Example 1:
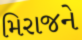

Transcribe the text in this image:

મિરાજને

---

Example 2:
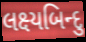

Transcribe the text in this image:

લક્ષ્યબિન્દુ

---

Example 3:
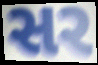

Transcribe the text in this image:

સર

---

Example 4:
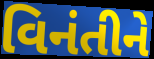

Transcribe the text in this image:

વિનંતીને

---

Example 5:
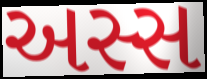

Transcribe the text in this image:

અસ્સ